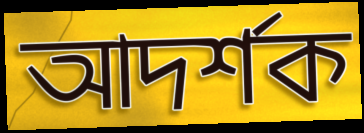
আদৰ্শক